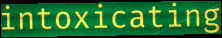
intoxicating